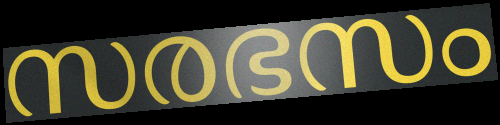
സരഭസം